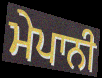
ਮੇਪਾਨੀ